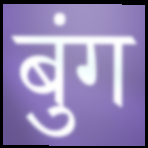
बुंग